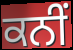
ਕਨੀਂ